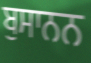
ਬੁਸਾਨਨ